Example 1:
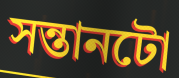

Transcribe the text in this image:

সন্তানটো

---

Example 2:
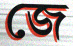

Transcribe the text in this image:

জে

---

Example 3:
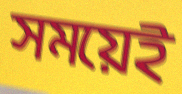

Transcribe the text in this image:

সময়েই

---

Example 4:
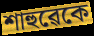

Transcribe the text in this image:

শাহুৱেকে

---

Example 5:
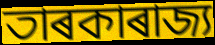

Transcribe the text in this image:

তাৰকাৰাজ্য